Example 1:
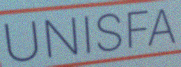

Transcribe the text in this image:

UNISFA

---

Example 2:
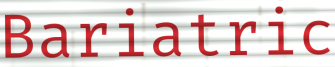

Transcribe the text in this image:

Bariatric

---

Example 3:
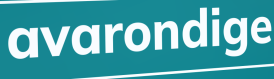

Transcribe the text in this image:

avarondige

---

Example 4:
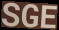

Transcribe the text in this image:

SGE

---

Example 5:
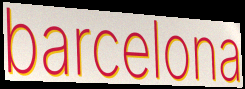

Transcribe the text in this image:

barcelona